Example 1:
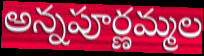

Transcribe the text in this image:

అన్నపూర్ణమ్మల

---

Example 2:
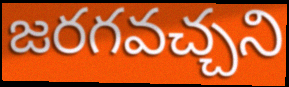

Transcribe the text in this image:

జరగవచ్చని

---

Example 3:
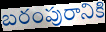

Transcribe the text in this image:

బరంపురానికి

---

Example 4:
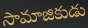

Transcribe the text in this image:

సామాజికుడు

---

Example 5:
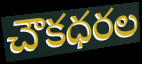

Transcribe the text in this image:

చౌకధరల